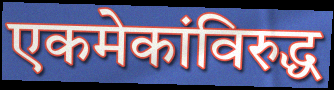
एकमेकांविरुद्ध